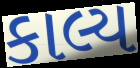
કાલ્ય